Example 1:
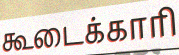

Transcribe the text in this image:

கூடைக்காரி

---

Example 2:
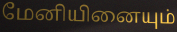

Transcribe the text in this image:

மேனியினையும்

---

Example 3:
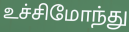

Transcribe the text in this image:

உச்சிமோந்து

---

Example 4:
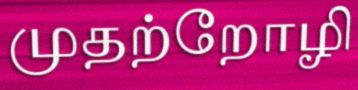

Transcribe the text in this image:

முதற்றோழி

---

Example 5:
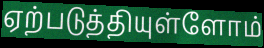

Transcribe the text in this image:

ஏற்படுத்தியுள்ளோம்